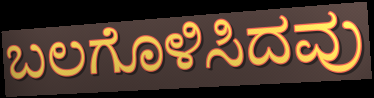
ಬಲಗೊಳಿಸಿದವು